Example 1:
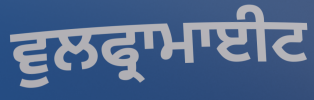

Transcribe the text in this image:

ਵੁਲਫ੍ਰਾਮਾਈਟ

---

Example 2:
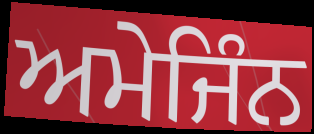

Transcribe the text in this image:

ਅਮੇਜਿੰਨ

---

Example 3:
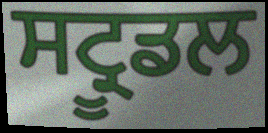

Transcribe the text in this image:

ਸਟ੍ਰੂਡਲ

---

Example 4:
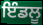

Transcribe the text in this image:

ਇੰਡਲੂ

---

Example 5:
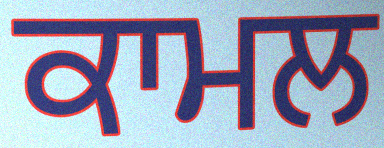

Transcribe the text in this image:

ਕਾਮਲ